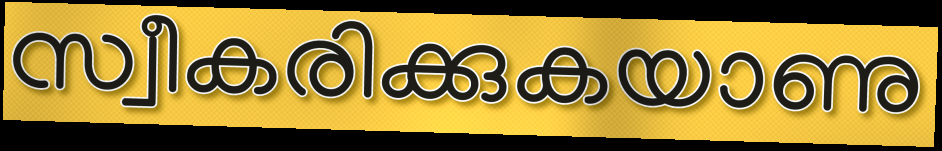
സ്വീകരിക്കുകയാണു